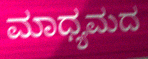
ಮಾಧ್ಯಮದ